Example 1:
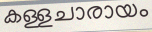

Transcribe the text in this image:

കള്ളചാരായം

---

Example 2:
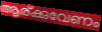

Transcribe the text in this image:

ആര്ക്കുവേണം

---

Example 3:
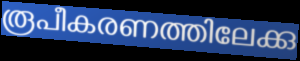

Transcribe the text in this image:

രൂപീകരണത്തിലേക്കു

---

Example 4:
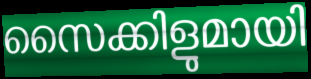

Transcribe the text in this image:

സൈക്കിളുമായി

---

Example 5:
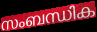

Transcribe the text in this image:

സംബന്ധിക